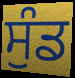
ਸੁੰਡ